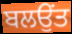
ਬਲਉਂਤ